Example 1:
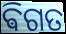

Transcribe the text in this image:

ଵିଗତ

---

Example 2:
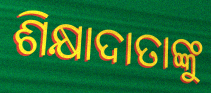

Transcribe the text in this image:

ଶିକ୍ଷାଦାତାଙ୍କୁ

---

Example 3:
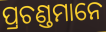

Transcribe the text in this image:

ପ୍ରଚଣ୍ଡମାନେ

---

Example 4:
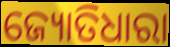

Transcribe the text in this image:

ଜ୍ଯୋତିଧାରା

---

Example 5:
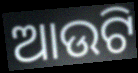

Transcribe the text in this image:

ଆଉଟି